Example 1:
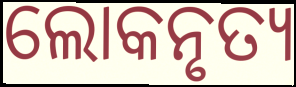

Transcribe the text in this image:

ଲୋକନୃତ୍ଯ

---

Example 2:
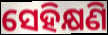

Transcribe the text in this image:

ସେହିକ୍ଷଣି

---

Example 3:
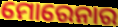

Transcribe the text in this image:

ମୋରେନାର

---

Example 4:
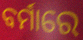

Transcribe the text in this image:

ବର୍ମାରେ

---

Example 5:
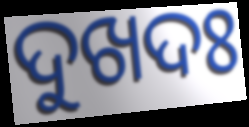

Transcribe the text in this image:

ଦୁଖଦଃ